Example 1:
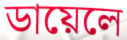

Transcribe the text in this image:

ডায়েলে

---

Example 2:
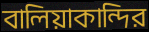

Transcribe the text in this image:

বালিয়াকান্দির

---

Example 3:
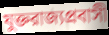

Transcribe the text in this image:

যুক্তরাজ্যপ্রবাসী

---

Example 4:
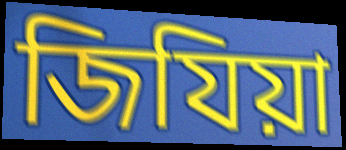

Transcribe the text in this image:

জিযিয়া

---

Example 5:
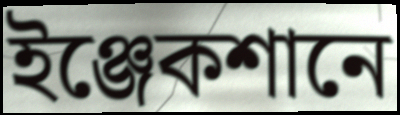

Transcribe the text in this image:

ইঞ্জেকশানে